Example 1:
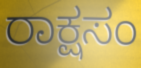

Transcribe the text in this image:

ರಾಕ್ಷಸಂ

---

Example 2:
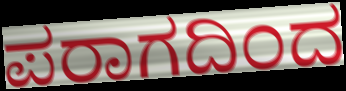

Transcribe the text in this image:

ಪರಾಗದಿಂದ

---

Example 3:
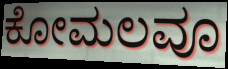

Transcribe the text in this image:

ಕೋಮಲವೂ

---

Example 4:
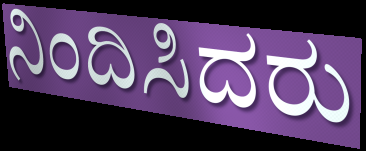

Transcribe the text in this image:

ನಿಂದಿಸಿದರು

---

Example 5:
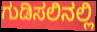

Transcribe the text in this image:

ಗುಡಿಸಲಿನಲ್ಲಿ